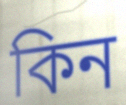
কিন